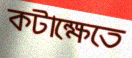
কটাক্ষেতে